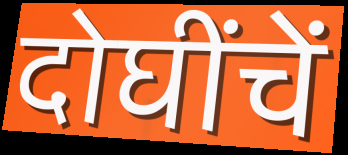
दोघींचें